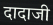
दादाजी